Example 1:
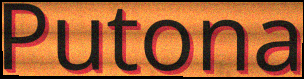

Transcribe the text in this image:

Putona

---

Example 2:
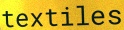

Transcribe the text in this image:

textiles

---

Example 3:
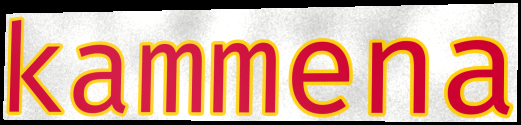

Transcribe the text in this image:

kammena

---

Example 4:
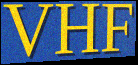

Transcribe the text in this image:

VHF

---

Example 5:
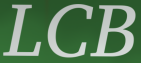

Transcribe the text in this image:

LCB